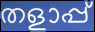
തളാപ്പ്